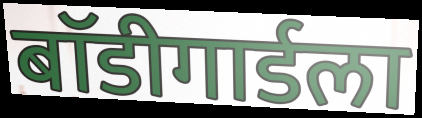
बॉडीगार्डला